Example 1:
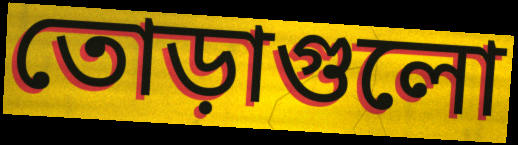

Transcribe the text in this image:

তোড়াগুলো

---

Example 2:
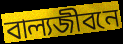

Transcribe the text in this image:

বাল্যজীবনে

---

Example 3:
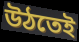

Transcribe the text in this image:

উঠতেই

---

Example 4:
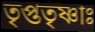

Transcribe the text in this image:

তৃপ্ততৃষ্ণাঃ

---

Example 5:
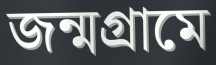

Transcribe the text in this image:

জন্মগ্রামে